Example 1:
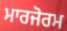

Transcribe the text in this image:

ਮਾਰਜੋਰਮ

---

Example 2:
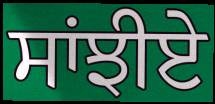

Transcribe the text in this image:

ਸਾਂਝੀਏ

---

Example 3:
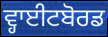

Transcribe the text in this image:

ਵ੍ਹਾਈਟਬੋਰਡ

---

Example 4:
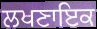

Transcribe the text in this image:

ਲਖਣਾਇਕ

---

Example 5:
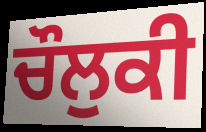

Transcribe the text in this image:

ਚੌਲੁਕੀ